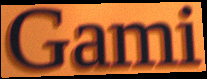
Gami